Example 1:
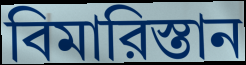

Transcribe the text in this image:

বিমারিস্তান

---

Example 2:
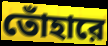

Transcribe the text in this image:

তোঁহারে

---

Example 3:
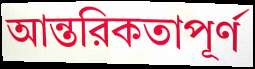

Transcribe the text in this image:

আন্তরিকতাপূর্ণ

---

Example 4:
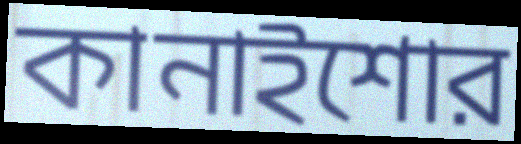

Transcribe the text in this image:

কানাইশোর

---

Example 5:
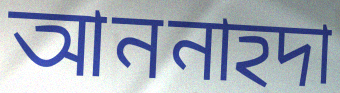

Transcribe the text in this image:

আননাহদা